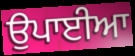
ਉਪਾਈਆ